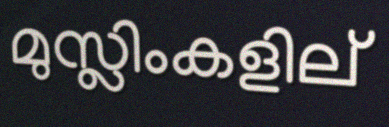
മുസ്ലിംകളില്